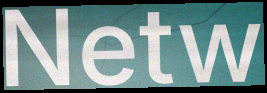
Netw